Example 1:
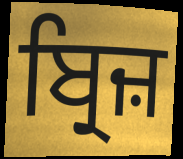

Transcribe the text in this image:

ਬ੍ਰਿਜ਼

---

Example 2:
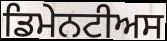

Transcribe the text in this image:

ਡਿਮੇਨਟੀਅਸ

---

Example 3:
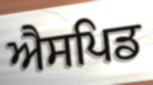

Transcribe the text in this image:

ਐਸਪਿਡ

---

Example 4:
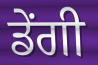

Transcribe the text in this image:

ਡੇਂਗੀ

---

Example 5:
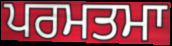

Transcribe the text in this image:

ਪਰਮਤਮਾ